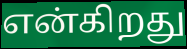
என்கிறது